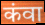
कंवा